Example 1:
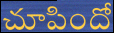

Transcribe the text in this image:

చూపిందో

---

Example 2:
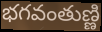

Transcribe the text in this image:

భగవంతుణ్ణి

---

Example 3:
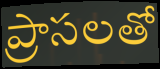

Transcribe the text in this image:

ప్రాసలతో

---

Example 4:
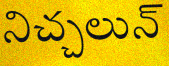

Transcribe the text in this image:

నిచ్చలున్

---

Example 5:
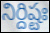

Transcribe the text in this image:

నిర్దిష్టః